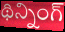
థిన్నింగ్